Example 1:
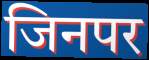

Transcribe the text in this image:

जिनपर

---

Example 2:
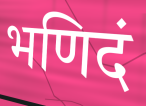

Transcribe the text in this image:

भणिदं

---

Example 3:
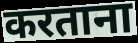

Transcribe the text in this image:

करताना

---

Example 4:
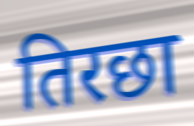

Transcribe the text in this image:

तिरछा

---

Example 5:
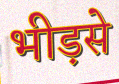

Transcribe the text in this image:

भीड़से